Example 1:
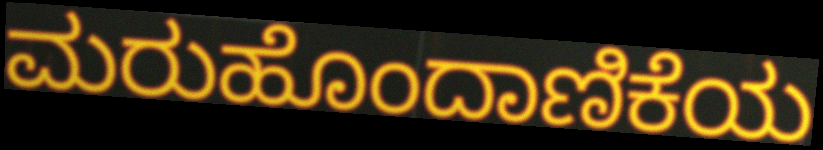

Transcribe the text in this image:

ಮರುಹೊಂದಾಣಿಕೆಯ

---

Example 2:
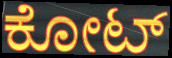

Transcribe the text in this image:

ಕೋಟ್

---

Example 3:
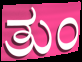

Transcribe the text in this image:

ತುಂ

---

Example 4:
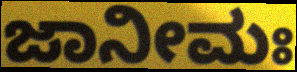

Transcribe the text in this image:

ಜಾನೀಮಃ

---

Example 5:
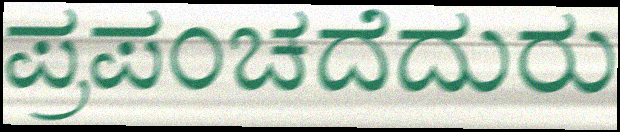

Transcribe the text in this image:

ಪ್ರಪಂಚದೆದುರು